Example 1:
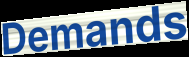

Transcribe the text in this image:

Demands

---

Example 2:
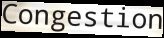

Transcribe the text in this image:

Congestion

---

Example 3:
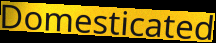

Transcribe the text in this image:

Domesticated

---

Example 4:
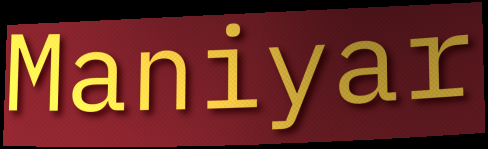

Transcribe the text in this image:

Maniyar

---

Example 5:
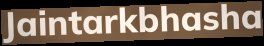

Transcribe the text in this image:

Jaintarkbhasha